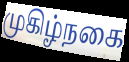
முகிழ்நகை